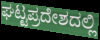
ಘಟ್ಟಪ್ರದೇಶದಲ್ಲಿ